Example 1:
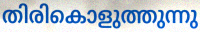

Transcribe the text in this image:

തിരികൊളുത്തുന്നു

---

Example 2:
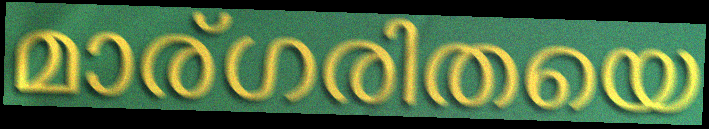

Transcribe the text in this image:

മാര്ഗരിതയെ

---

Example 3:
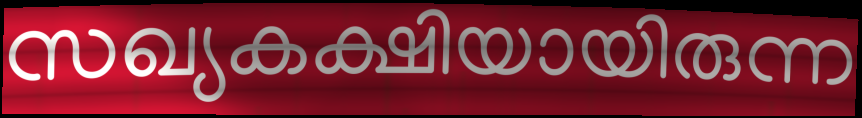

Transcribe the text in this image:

സഖ്യകക്ഷിയായിരുന്ന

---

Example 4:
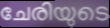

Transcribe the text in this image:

ചേരിയുടെ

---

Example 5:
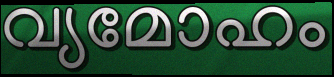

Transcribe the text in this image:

വ്യമോഹം